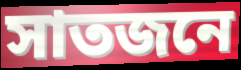
সাতজনে